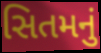
સિતમનું